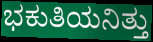
ಭಕುತಿಯನಿತ್ತು